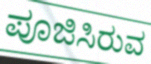
ಪೂಜಿಸಿರುವ